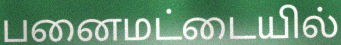
பனைமட்டையில்